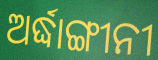
ଅର୍ଦ୍ଧାଙ୍ଗୀନୀ